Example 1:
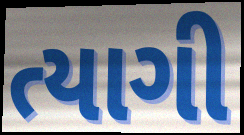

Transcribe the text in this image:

ત્યાગી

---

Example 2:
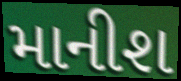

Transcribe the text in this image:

માનીશ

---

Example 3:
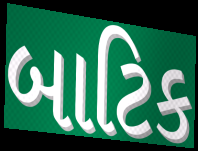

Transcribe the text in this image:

બાટિક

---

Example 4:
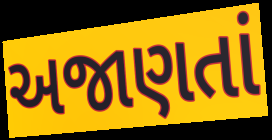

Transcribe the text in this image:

અજાણતાં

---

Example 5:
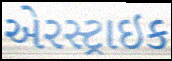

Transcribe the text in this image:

એરસ્ટ્રાઇક